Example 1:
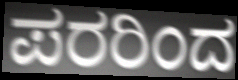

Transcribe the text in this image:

ಪರರಿಂದ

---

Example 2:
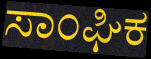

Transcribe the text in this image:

ಸಾಂಘಿಕ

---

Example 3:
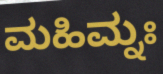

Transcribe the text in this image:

ಮಹಿಮ್ನಃ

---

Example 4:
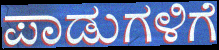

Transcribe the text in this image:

ಪಾಡುಗಳಿಗೆ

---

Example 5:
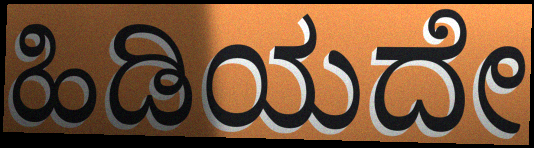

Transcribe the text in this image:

ಹಿಡಿಯದೇ